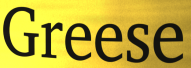
Greese